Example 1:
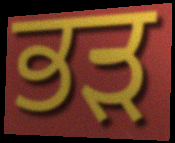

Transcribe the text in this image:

ਭੜ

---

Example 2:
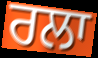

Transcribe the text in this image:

ਰਲਾ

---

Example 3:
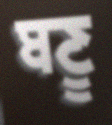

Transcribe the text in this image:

ਬਣੂ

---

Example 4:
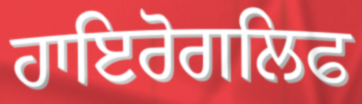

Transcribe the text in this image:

ਹਾਇਰੋਗਲਿਫ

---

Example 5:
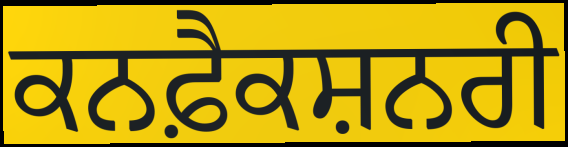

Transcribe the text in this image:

ਕਨਫ਼ੈਕਸ਼ਨਰੀ